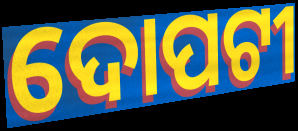
ଦୋପଟୀ